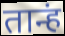
तान्हं